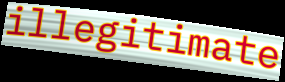
illegitimate